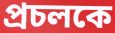
প্রচলকে